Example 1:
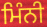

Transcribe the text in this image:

ਮਿੰਨੀ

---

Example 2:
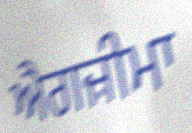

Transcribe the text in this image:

ਐਗਜ਼ੀਮਾ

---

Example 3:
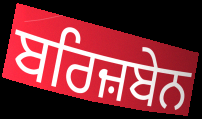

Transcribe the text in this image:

ਬਰਿਜ਼ਬੇਨ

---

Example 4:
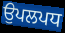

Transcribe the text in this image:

ਉਪਲਪਧ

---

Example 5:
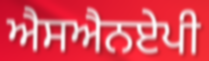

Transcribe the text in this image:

ਐਸਐਨਏਪੀ